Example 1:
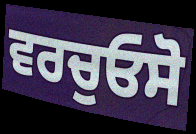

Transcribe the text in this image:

ਵਰਚੁਓਸੋ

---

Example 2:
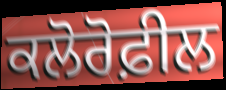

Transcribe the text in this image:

ਕਲੋਰੋਫ਼ੀਲ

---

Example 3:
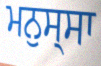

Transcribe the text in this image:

ਮਨੁਸ੍ਸਾ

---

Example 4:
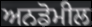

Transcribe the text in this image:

ਅਨਡੋਮੀਲ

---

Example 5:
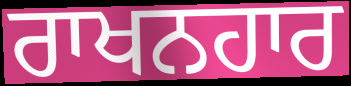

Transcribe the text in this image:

ਰਾਖਨਹਾਰ